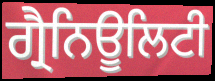
ਗ੍ਰੈਨਿਊਲਿਟੀ